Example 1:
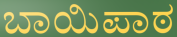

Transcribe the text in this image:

ಬಾಯಿಪಾಠ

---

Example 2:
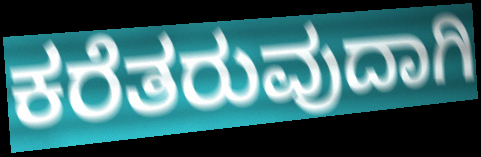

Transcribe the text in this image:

ಕರೆತರುವುದಾಗಿ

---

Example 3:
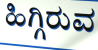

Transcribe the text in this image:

ಹಿಗ್ಗಿರುವ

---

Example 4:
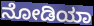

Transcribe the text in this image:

ನೋಡಿಯಾ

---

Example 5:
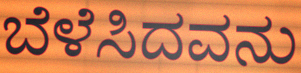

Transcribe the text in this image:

ಬೆಳೆಸಿದವನು